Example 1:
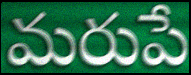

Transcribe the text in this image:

మరుపే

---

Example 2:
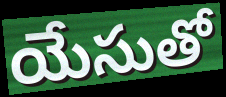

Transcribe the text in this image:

యేసుతో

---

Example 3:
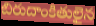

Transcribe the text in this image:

బిరుదాంకితులైన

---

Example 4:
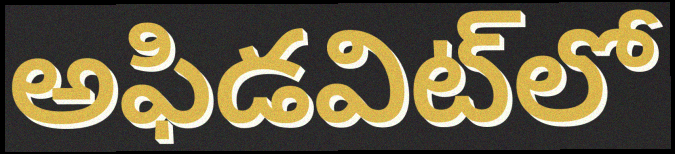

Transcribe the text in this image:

అఫిడవిట్‌లో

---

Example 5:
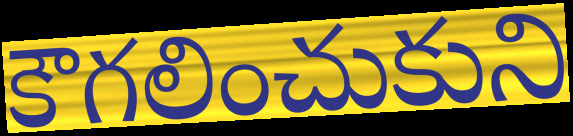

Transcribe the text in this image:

కౌగలించుకుని